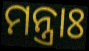
ମନ୍ତ୍ରାଃ